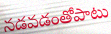
నడవడంతోపాటు